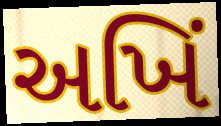
અખિં